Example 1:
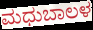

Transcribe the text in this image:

ಮಧುಬಾಲಳ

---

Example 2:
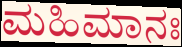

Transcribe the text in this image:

ಮಹಿಮಾನಃ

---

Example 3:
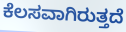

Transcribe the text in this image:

ಕೆಲಸವಾಗಿರುತ್ತದೆ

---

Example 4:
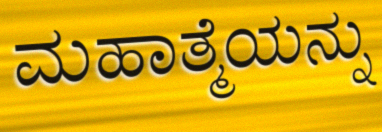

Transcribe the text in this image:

ಮಹಾತ್ಮೆಯನ್ನು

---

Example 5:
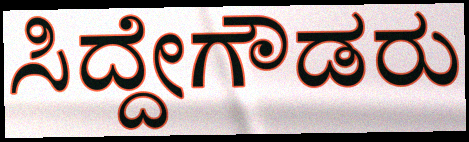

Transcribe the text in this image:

ಸಿದ್ದೇಗೌಡರು